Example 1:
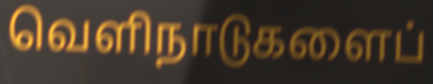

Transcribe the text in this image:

வெளிநாடுகளைப்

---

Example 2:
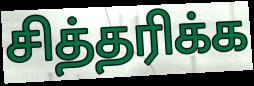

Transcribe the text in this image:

சித்தரிக்க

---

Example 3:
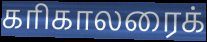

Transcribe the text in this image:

கரிகாலரைக்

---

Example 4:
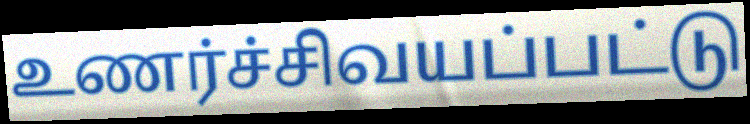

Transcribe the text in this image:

உணர்ச்சிவயப்பட்டு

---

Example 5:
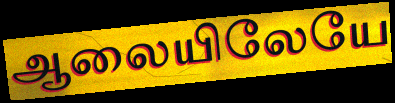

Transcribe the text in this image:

ஆலையிலேயே